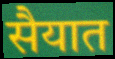
सैयात